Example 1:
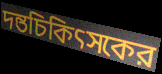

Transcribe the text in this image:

দন্তচিকিৎসকের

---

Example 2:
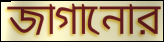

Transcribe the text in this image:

জাগানোর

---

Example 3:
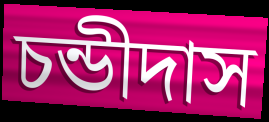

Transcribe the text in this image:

চন্ডীদাস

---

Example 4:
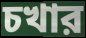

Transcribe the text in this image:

চখার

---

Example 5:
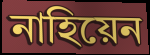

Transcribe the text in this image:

নাহিয়েন